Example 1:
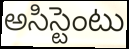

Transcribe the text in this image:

అసిస్టెంటు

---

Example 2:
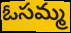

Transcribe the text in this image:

ఓసమ్మ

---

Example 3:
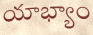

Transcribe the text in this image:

యాభ్యాం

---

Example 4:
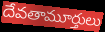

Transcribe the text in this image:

దేవతామూర్తులు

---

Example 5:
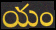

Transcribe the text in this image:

యం